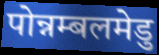
पोन्नम्बलमेडु